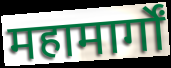
महामार्गों